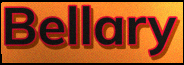
Bellary